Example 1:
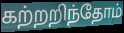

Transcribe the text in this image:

கற்றறிந்தோம்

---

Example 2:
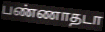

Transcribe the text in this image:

பண்ணாதடா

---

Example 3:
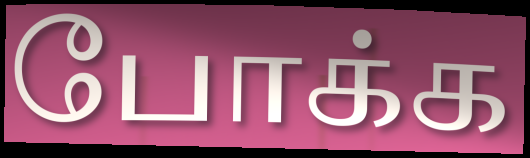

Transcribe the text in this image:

போக்க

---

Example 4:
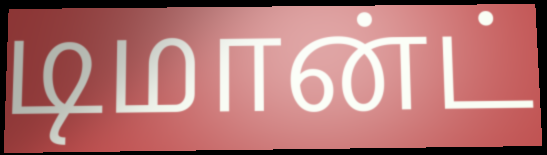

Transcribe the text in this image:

டிமான்ட்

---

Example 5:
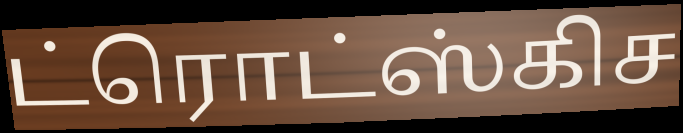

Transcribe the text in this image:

ட்ரொட்ஸ்கிச